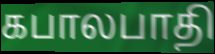
கபாலபாதி